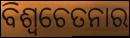
ବିଶ୍ଵଚେତନାର